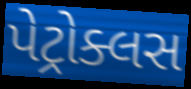
પેટ્રોક્લસ